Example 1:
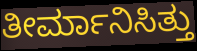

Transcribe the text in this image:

ತೀರ್ಮಾನಿಸಿತ್ತು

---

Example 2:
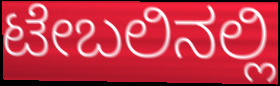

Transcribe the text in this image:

ಟೇಬಲಿನಲ್ಲಿ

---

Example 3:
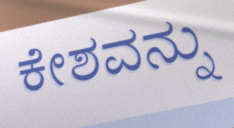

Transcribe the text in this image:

ಕೇಶವನ್ನು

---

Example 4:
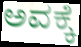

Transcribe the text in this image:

ಅವಕ್ಕೆ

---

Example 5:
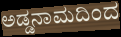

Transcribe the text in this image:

ಅಡ್ಡನಾಮದಿಂದ